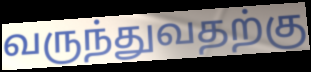
வருந்துவதற்கு